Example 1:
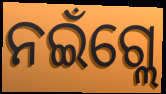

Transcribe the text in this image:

ନଇଁଗ୍ଲେ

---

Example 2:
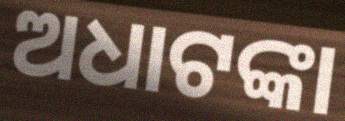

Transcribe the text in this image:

ଅଧାଟଙ୍କା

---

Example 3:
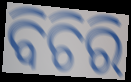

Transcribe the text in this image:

ବିଚିରି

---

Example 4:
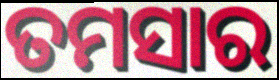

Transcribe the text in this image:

ତମସାର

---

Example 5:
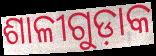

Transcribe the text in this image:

ଶାଳୀଗୁଡ଼ାକ